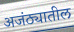
अजंठ्यातील